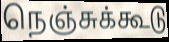
நெஞ்சுக்கூடு